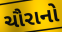
ચૌરાનો